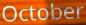
October